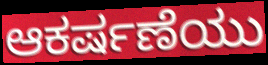
ಆಕರ್ಷಣೆಯು